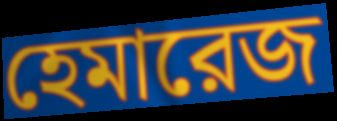
হেমারেজ